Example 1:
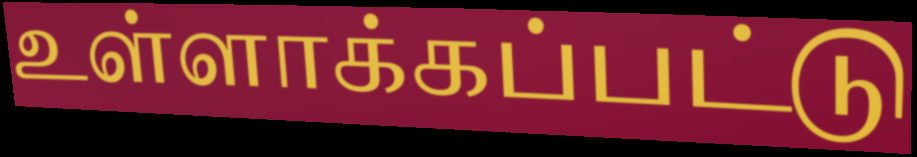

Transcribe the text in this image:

உள்ளாக்கப்பட்டு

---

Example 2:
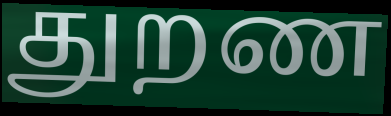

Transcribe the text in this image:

துறண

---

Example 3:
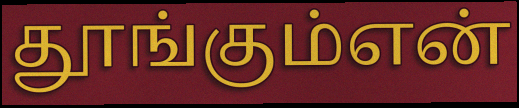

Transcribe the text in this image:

தூங்கும்என்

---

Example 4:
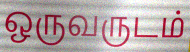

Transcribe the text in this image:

ஒருவருடம்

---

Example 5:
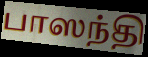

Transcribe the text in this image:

பாஸந்தி